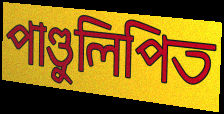
পাণ্ডুলিপিত